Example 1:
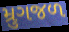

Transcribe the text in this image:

મ્રુગજળ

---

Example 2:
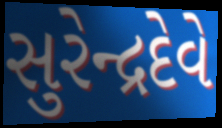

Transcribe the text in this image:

સુરેન્દ્રદેવે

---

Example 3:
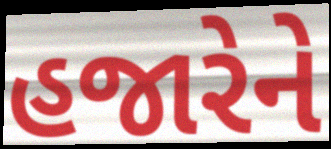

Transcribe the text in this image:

હજારેને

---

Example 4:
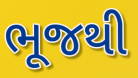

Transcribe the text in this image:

ભૂજથી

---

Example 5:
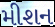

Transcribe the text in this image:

મીશન